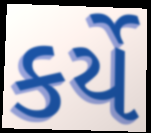
કર્યે